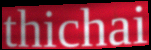
thichai